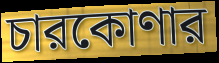
চারকোণার